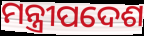
ମନ୍ତ୍ରୀପଦେଶ